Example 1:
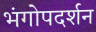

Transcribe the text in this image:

भंगोपदर्शन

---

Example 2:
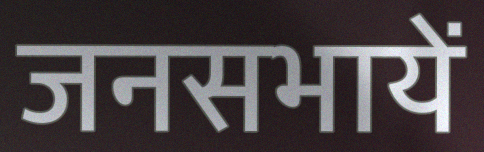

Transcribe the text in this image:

जनसभायें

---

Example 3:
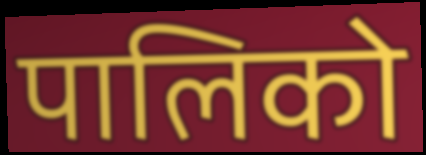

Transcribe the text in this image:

पालिको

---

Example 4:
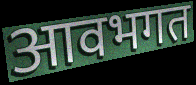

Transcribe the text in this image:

आवभगत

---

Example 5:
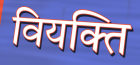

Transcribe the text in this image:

वियक्ति